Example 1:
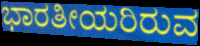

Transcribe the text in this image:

ಭಾರತೀಯರಿರುವ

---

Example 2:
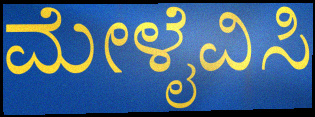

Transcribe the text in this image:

ಮೇಳೈವಿಸಿ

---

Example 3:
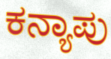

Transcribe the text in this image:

ಕನ್ಯಾಪು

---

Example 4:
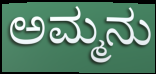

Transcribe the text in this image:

ಅಮ್ಮನು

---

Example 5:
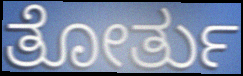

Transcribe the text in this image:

ತೋರ್ತು